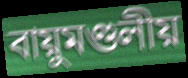
বায়ুমণ্ডলীয়